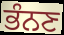
ਭੰਨਣ